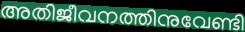
അതിജീവനത്തിനുവേണ്ടി